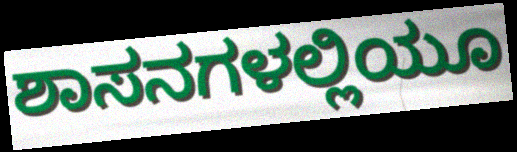
ಶಾಸನಗಳಲ್ಲಿಯೂ